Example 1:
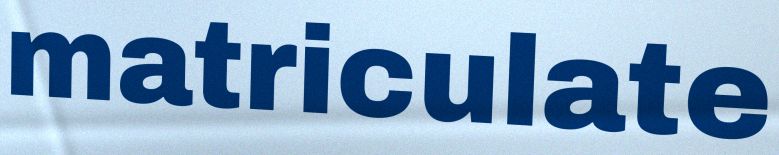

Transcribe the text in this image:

matriculate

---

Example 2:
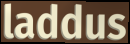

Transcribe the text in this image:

laddus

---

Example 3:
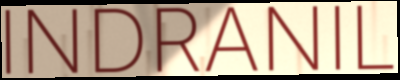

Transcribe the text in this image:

INDRANIL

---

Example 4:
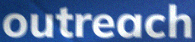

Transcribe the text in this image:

outreach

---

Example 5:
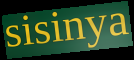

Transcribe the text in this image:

sisinya